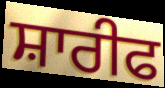
ਸ਼ਾਰੀਫ